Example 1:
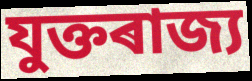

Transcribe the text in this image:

যুক্তৰাজ্য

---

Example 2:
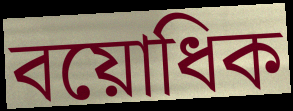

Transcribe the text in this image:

বয়োধিক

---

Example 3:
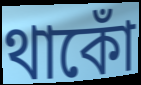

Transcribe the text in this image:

থাকোঁ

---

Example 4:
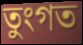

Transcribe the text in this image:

তুংগত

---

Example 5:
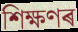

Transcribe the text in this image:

শিক্ষণৰ